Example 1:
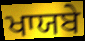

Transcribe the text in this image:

ਖਾਯਬੇ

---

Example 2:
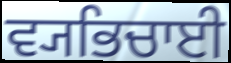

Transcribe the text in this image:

ਵ੍ਯਭਿਚਾਈ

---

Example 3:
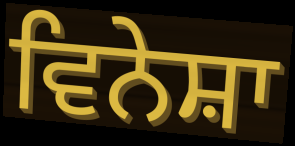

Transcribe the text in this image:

ਵਿਨੇਸ਼ਾ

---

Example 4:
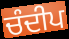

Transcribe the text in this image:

ਚੰਦੀਪ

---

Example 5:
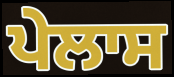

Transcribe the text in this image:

ਪੇਲਾਸ